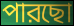
পারছো